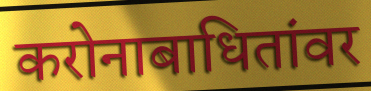
करोनाबाधितांवर